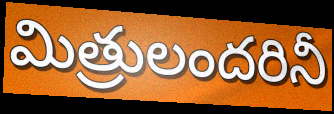
మిత్రులందరినీ